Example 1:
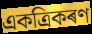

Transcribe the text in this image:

একত্ৰিকৰণ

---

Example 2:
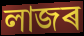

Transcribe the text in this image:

লাজৰ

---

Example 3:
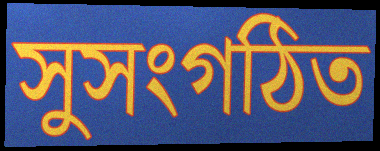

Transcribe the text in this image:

সুসংগঠিত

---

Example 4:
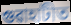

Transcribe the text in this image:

গুৱাহাটীত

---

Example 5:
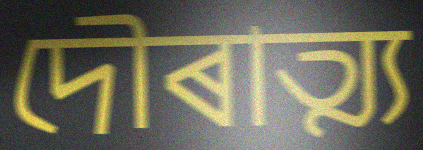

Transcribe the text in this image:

দৌৰাত্ম্য